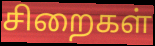
சிறைகள்